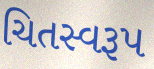
ચિતસ્વરૂપ